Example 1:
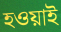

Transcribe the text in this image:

হওয়াই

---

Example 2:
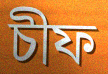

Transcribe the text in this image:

চীফ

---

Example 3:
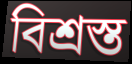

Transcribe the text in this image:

বিশ্রস্ত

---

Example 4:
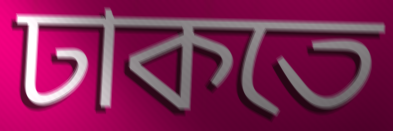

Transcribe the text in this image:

ঢাকতে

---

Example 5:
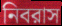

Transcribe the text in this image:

নিবরাস